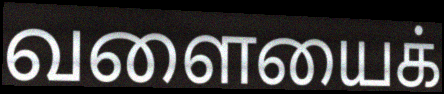
வளையைக்